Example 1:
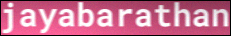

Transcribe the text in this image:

jayabarathan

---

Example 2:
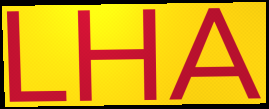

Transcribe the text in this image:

LHA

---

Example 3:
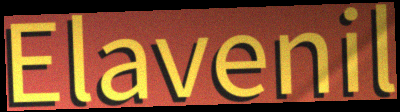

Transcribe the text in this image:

Elavenil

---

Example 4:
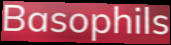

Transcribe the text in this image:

Basophils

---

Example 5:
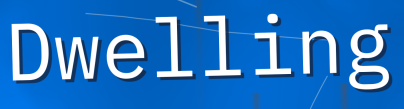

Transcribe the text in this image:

Dwelling